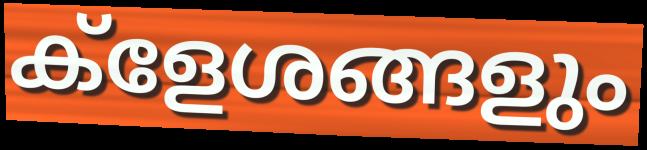
ക്ളേശങ്ങളും